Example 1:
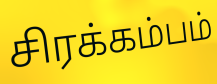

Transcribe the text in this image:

சிரக்கம்பம்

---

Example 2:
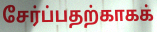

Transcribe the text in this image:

சேர்ப்பதற்காகக்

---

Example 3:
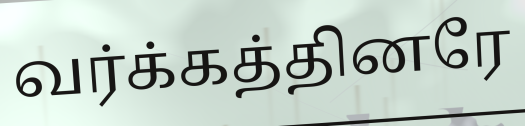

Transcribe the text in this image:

வர்க்கத்தினரே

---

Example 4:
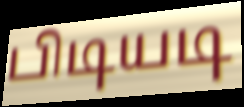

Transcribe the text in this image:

பிடியடி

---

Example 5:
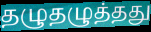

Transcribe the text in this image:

தழுதழுத்தது